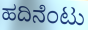
ಹದಿನೆಂಟು